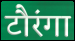
टौरंगा